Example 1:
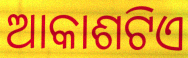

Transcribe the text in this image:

ଆକାଶଟିଏ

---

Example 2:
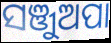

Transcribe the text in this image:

ସଞ୍ଜୁଅପା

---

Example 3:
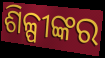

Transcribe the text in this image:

ଶିଳ୍ପୀଙ୍କର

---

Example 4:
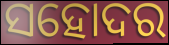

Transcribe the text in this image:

ସହୋଦର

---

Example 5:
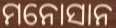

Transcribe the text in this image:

ମନୋସାନ